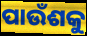
ପାଉଁଶକୁ